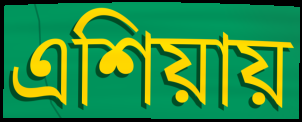
এশিয়ায়